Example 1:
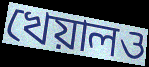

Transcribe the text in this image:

খেয়ালও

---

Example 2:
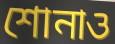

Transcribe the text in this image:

শোনাও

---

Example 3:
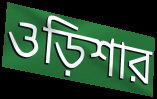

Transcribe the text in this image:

ওড়িশার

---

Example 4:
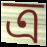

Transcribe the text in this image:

ত্র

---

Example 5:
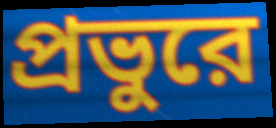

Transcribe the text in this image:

প্রভুরে